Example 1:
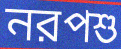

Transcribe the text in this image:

নরপশু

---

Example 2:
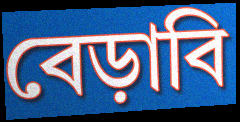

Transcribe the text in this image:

বেড়াবি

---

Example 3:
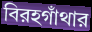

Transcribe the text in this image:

বিরহগাঁথার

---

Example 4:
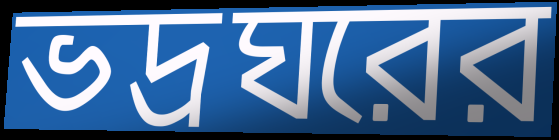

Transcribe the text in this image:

ভদ্রঘরের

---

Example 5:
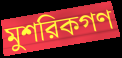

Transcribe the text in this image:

মুশরিকগণ